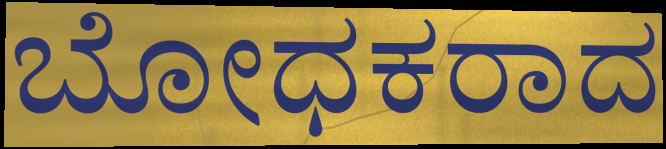
ಬೋಧಕರಾದ